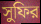
সুফির